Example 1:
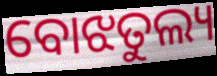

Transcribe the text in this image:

ବୋଝତୁଲ୍ୟ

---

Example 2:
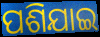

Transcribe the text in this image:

ପଶିଯାଇ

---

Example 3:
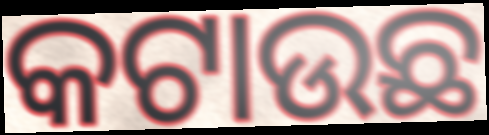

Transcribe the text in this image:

କଟାଉଛ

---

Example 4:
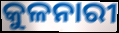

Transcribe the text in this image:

କୁଳନାରୀ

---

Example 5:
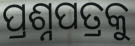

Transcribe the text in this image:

ପ୍ରଶ୍ନପତ୍ରକୁ